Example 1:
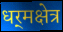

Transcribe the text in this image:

धर्मक्षेत्र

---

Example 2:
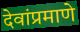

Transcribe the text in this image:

देवांप्रमाणे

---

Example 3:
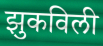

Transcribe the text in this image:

झुकविली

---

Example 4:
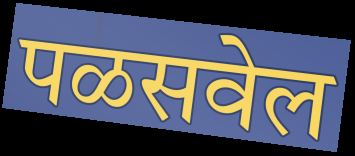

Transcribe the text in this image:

पळसवेल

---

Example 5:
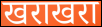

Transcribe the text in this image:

खराखरा